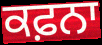
ਕਫ਼ਨਾ